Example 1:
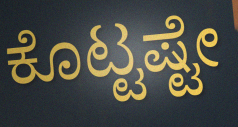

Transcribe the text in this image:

ಕೊಟ್ಟಷ್ಟೇ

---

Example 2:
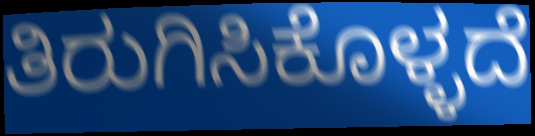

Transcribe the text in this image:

ತಿರುಗಿಸಿಕೊಳ್ಳದೆ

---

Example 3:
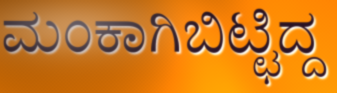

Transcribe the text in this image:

ಮಂಕಾಗಿಬಿಟ್ಟಿದ್ದ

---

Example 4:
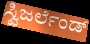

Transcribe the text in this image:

ಸ್ವಿಜರ್ಲೆಂಡ್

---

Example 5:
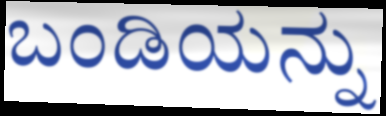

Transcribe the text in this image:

ಬಂಡಿಯನ್ನು